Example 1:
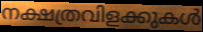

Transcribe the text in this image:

നക്ഷത്രവിളക്കുകൾ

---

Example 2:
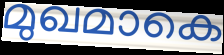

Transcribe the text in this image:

മുഖമാകെ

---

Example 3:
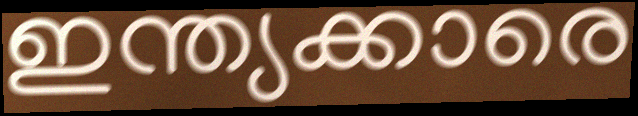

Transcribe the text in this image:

ഇന്ത്യക്കാരെ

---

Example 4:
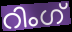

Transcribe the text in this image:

റിംഗ്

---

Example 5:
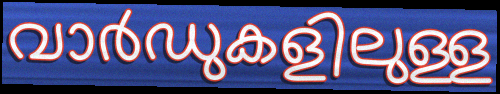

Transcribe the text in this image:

വാർഡുകളിലുള്ള